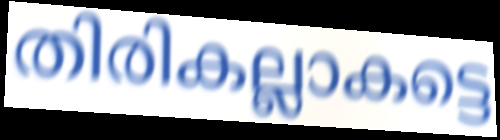
തിരികല്ലാകട്ടെ